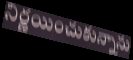
నిర్ణయించుకున్నాను